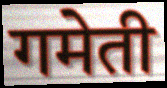
गमेती